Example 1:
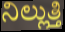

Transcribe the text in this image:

ನಿಲ್ಲುತ್ತಿ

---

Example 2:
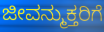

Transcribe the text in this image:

ಜೀವನ್ಮುಕ್ತರಿಗೆ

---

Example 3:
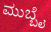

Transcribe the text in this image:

ಮುಬ್ಬೈ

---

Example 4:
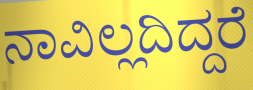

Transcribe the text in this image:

ನಾವಿಲ್ಲದಿದ್ದರೆ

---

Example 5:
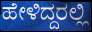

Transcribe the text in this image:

ಹೇಳಿದ್ದರಲ್ಲಿ